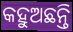
କହୁଅଛନ୍ତି